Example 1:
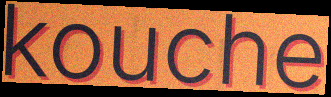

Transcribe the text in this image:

kouche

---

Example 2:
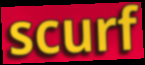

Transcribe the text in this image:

scurf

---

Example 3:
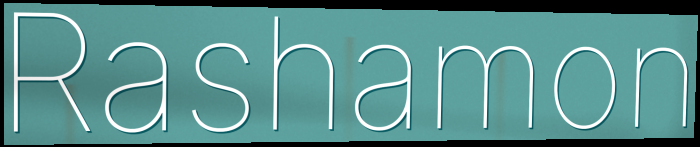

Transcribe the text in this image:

Rashamon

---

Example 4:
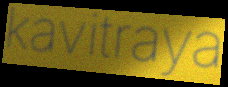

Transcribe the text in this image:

kavitraya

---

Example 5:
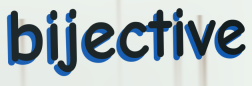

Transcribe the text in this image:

bijective